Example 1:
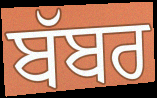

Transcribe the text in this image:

ਬੱਬਰ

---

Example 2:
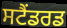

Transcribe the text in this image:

ਸਟੈਂਡਰਡ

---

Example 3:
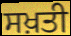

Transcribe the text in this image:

ਸਖ਼ਤੀ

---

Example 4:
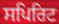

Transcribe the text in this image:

ਸਪਿਰਿਟ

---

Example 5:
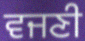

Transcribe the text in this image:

ਵਜਣੀ